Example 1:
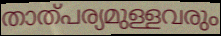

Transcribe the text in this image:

താത്പര്യമുള്ളവരും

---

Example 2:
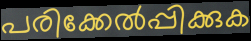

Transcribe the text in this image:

പരിക്കേൽപ്പിക്കുക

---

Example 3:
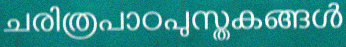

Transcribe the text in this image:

ചരിത്രപാഠപുസ്തകങ്ങൾ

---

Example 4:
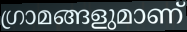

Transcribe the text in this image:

ഗ്രാമങ്ങളുമാണ്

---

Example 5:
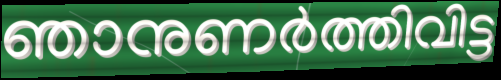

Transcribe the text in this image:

ഞാനുണർത്തിവിട്ട